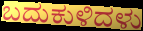
ಬದುಕುಳಿದಳು